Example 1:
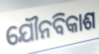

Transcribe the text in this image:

ଯୌନବିକାଶ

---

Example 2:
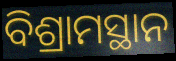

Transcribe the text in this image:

ବିଶ୍ରାମସ୍ଥାନ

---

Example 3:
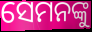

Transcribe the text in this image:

ସେମନଙ୍କୁ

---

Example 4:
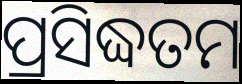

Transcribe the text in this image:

ପ୍ରସିଦ୍ଧତମ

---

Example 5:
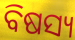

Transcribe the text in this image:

ବିଷସ୍ୟ